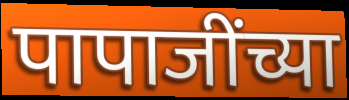
पापाजींच्या